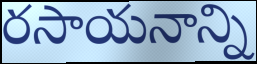
రసాయనాన్ని